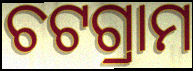
ଚଟଗ୍ରାମ